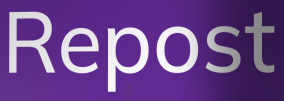
Repost